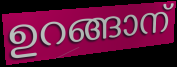
ഉറങ്ങാന്